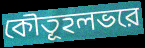
কৌতূহলভরে